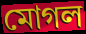
মোগল